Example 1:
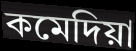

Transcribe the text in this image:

কমেদিয়া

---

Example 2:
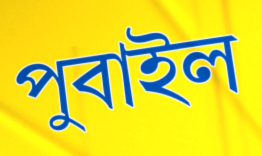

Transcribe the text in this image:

পুবাইল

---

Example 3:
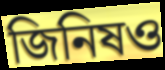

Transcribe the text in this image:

জিনিষও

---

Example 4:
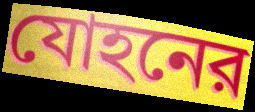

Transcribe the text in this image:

যোহনের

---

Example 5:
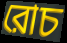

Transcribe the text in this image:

রোচ